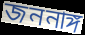
জননাঙ্গ